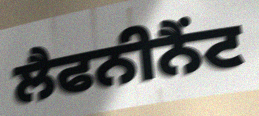
ਲੈਫਨੀਨੈਂਟ